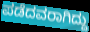
ಪಡೆದವರಾಗಿದ್ದು